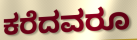
ಕರೆದವರೂ